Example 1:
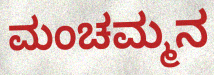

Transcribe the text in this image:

ಮಂಚಮ್ಮನ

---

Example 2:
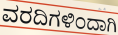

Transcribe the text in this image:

ವರದಿಗಳಿಂದಾಗಿ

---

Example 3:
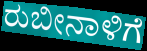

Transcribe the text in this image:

ರುಬೀನಾಳಿಗೆ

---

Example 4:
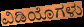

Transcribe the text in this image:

ವಿಡಿಯೊಗಳು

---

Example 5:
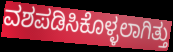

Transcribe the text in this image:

ವಶಪಡಿಸಿಕೊಳ್ಳಲಾಗಿತ್ತು